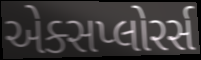
એક્સપ્લોરર્સ